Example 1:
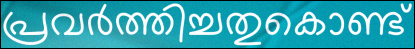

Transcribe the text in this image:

പ്രവർത്തിച്ചതുകൊണ്ട്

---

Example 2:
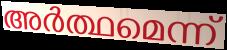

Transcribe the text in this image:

അർത്ഥമെന്ന്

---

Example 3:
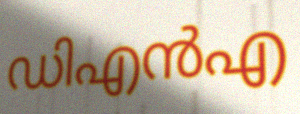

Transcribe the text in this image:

ഡിഎൻഎ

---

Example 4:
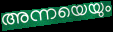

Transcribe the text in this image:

അന്നയെയും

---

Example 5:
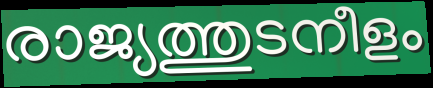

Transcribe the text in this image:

രാജ്യത്തുടനീളം